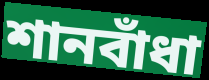
শানবাঁধা